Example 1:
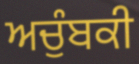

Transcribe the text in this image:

ਅਚੁੰਬਕੀ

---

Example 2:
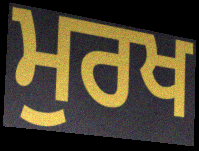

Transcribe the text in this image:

ਮੁਰਖ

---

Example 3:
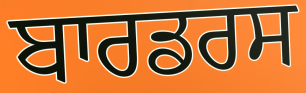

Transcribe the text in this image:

ਬਾਰਡਰਸ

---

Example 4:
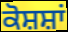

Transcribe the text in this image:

ਕੋਸ਼ਸ਼ਾਂ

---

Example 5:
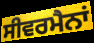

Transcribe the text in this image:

ਸੀਵਰਮੈਨਾਂ